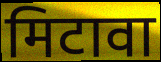
मिटावा